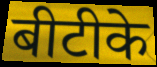
बीटीके